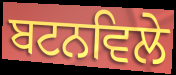
ਬਟਨਵਿਲੇ